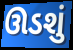
ઊડશું